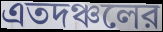
এতদঞ্চলের